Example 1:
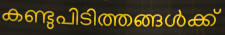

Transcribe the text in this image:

കണ്ടുപിടിത്തങ്ങൾക്ക്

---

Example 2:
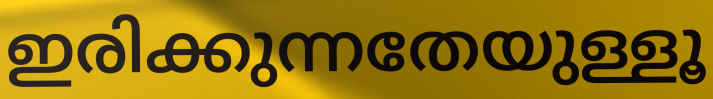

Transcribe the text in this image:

ഇരിക്കുന്നതേയുള്ളൂ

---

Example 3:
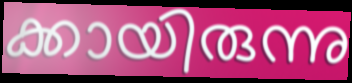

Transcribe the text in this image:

ക്കായിരുന്നു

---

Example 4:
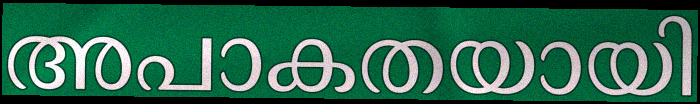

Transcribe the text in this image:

അപാകതയായി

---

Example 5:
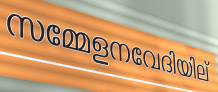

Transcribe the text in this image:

സമ്മേളനവേദിയില്